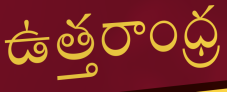
ఉత్తరాంధ్ర